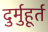
दुर्मुहूर्त